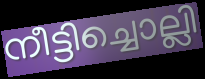
നീട്ടിച്ചൊല്ലി